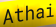
Athai